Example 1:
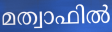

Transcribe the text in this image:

മത്വാഫിൽ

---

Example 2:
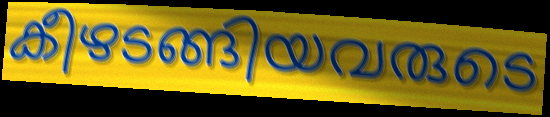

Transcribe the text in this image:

കീഴടങ്ങിയവരുടെ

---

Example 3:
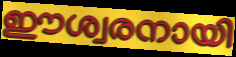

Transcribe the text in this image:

ഈശ്വരനായി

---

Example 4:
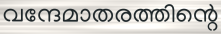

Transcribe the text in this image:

വന്ദേമാതരത്തിന്റെ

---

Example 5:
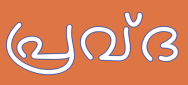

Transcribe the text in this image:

പ്രവ്ദ